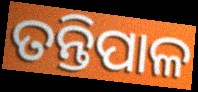
ତନ୍ତିପାଳ